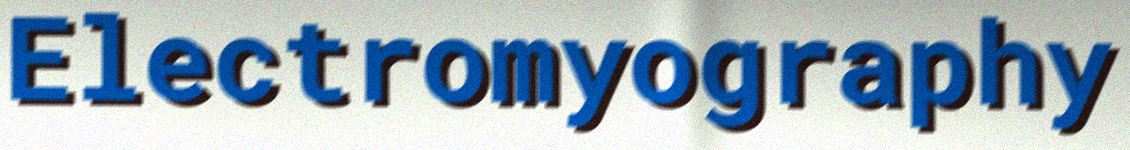
Electromyography